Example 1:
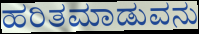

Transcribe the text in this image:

ಹರಿತಮಾಡುವನು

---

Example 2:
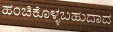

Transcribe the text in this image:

ಹಂಚಿಕೊಳ್ಳಬಹುದಾದ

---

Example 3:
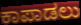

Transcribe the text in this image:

ಕಾಪಾಡಲು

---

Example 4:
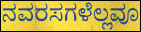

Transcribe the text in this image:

ನವರಸಗಳೆಲ್ಲವೂ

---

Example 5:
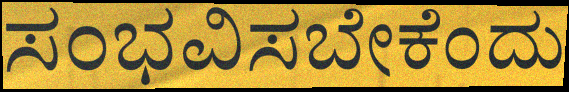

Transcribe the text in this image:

ಸಂಭವಿಸಬೇಕೆಂದು